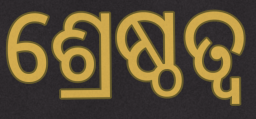
ଶ୍ରେଷ୍ଠତ୍ବ